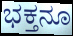
ಭಕ್ತನೂ